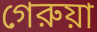
গেরুয়া